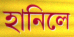
হানিলে